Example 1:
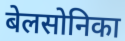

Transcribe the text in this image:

बेलसोनिका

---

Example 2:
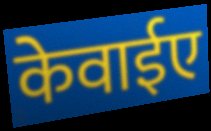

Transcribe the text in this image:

केवाईए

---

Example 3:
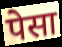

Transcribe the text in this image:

पेसा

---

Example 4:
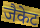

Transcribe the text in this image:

जैकेट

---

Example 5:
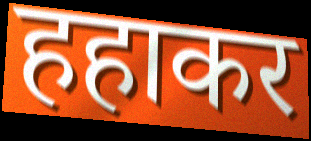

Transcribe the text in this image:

हहाकर